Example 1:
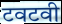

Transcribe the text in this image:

टवटवी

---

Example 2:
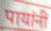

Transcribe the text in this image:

पायांनीं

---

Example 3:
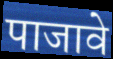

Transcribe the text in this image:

पाजावे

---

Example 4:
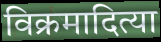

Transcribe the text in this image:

विक्रमादित्या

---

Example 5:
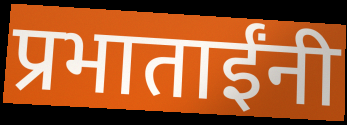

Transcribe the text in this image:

प्रभाताईंनी